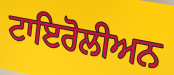
ਟਾਇਰੋਲੀਅਨ